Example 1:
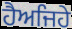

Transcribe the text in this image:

ਹੈਅਜਿਹੇ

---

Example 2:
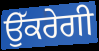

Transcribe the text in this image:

ਉੱਕਰੇਗੀ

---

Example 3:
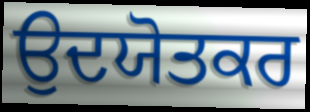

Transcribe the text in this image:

ਉਦਯੋਤਕਰ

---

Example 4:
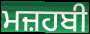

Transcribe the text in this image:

ਮਜ਼ਹਬੀ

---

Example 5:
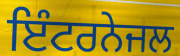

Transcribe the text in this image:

ਇੰਟਰਨੇਜਲ